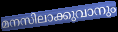
മനസിലാക്കുവാനും